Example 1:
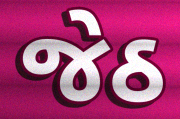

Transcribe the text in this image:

જેઠ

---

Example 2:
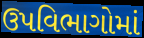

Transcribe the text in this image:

ઉપવિભાગોમાં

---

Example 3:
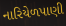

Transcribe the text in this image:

નારિયેળપાણી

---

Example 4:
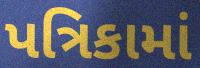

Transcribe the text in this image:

પત્રિકામાં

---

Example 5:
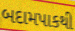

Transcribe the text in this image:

બદામપાકથી